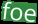
foe